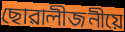
ছোৱালীজনীয়ে